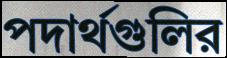
পদার্থগুলির